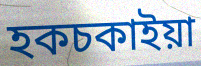
হকচকাইয়া